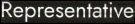
Representative